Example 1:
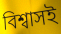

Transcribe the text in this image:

বিশ্বাসই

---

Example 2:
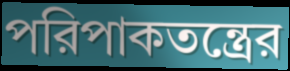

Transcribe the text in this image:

পরিপাকতন্ত্রের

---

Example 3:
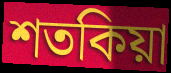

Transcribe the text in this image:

শতকিয়া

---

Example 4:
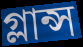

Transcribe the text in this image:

গ্লান্স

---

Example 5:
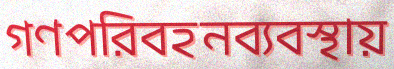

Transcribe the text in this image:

গণপরিবহনব্যবস্থায়